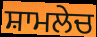
ਸ਼ਾਮਲੇਚ